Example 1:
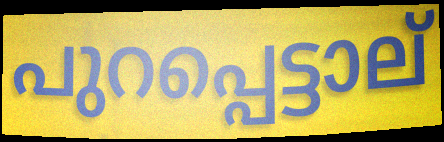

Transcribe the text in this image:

പുറപ്പെട്ടാല്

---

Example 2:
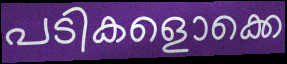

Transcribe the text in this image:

പടികളൊക്കെ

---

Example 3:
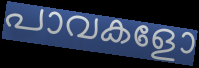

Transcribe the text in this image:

പാവകളോ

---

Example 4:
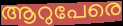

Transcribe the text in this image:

ആറുപേരെ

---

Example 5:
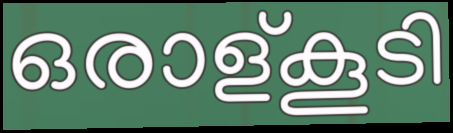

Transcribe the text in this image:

ഒരാള്കൂടി